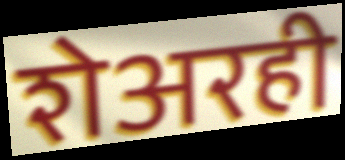
शेअरही